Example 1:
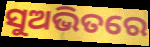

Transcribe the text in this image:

ସୁଅଭିତରେ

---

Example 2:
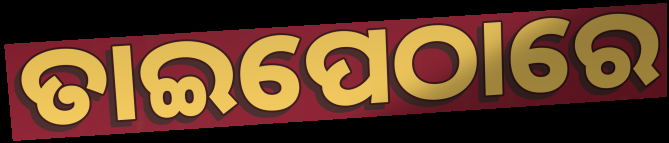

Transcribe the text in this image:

ତାଇପେଠାରେ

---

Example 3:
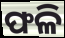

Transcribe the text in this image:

ଫଳି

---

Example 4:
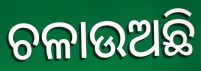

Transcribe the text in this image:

ଚଳାଉଅଛି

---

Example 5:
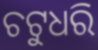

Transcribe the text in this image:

ଚଟୁଧରି